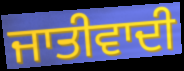
ਜਾਤੀਵਾਦੀ